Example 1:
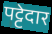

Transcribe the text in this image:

पट्टेदार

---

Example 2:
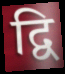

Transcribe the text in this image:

द्वि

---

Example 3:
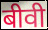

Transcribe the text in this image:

बीवी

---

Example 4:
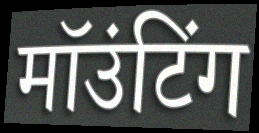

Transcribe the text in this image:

मॉउंटिंग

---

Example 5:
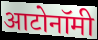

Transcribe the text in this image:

आटोनॉमी